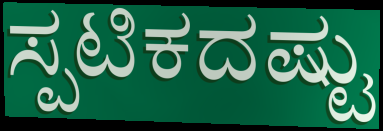
ಸ್ಪಟಿಕದಷ್ಟು